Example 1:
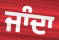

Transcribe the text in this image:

ਜਾੰਦਾ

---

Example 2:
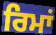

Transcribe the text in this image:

ਰਿਮਾਂ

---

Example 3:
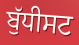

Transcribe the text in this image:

ਬੁੱਧੀਸਟ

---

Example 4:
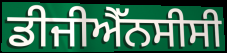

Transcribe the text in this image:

ਡੀਜੀਐੱਨਸੀਸੀ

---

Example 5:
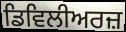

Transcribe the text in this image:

ਡਿਵਿਲੀਅਰਜ਼